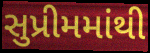
સુપ્રીમમાંથી